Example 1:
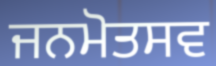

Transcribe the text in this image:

ਜਨਮੋਤਸਵ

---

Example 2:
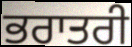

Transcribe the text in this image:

ਭਰਾਤਰੀ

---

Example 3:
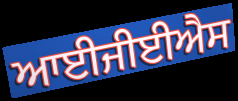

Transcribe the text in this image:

ਆਈਜੀਈਐਸ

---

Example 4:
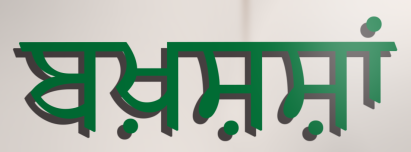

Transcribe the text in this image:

ਬਖ਼ਸ਼ਸ਼ਾਂ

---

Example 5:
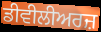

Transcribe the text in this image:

ਡੀਵੀਲੀਅਰਜ਼